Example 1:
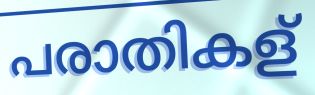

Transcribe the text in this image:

പരാതികള്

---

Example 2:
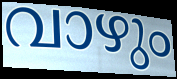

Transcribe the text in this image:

വാഴും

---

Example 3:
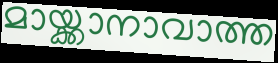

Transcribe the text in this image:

മായ്ക്കാനാവാത്ത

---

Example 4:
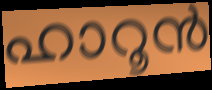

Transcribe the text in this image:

ഹാറൂൻ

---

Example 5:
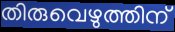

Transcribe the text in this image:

തിരുവെഴുത്തിന്